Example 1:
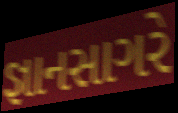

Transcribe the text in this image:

જ્ઞાનસાગરે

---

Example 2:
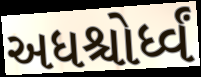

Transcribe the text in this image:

અધશ્ચોર્ધ્વં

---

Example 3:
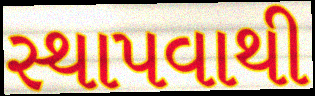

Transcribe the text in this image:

સ્થાપવાથી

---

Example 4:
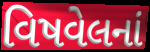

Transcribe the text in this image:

વિષવેલનાં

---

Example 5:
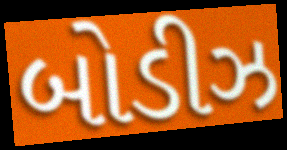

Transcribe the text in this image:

બોડીઝ